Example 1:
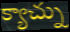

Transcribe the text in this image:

క్యాచ్ను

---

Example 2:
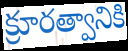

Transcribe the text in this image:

క్రూరత్వానికి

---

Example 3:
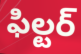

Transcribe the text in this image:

ఫిల్టర్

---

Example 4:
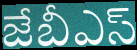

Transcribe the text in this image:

జేబీఎస్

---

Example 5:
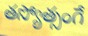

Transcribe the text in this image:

తస్యోత్సంగే